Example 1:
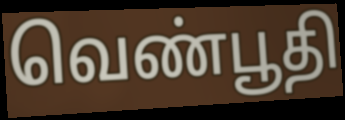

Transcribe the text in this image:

வெண்பூதி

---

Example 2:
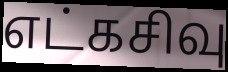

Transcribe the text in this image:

எட்கசிவு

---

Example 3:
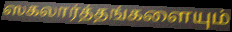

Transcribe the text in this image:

ஸகலார்த்தங்களையும்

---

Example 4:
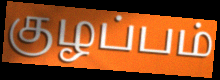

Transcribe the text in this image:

குழப்பம்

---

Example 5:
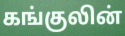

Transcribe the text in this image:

கங்குலின்